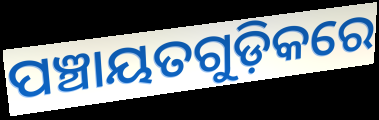
ପଞ୍ଚାୟତଗୁଡ଼ିକରେ